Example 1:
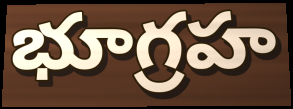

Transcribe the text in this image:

భూగ్రహ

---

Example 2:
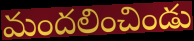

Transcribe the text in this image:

మందలించిండు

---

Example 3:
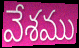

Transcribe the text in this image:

వేశము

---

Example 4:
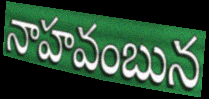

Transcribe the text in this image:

నాహవంబున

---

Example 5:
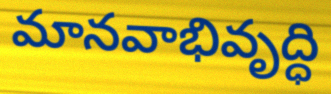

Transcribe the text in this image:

మానవాభివృద్ధి